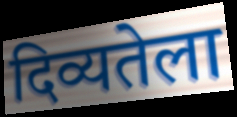
दिव्यतेला